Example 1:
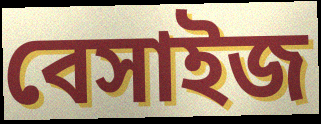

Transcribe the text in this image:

বেসাইজ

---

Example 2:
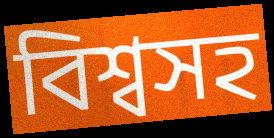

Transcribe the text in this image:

বিশ্বসহ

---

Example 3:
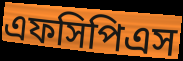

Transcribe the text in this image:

এফসিপিএস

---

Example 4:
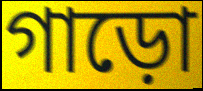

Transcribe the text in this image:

গাড়ো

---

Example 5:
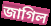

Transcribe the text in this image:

জাগিল